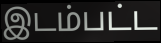
இடம்பட்ட